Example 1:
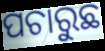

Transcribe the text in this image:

ପଚାରୁଛ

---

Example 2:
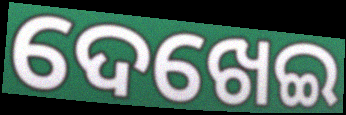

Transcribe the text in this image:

ଦେଖେଇ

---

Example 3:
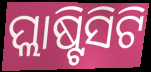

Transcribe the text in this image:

ପ୍ଲାଷ୍ଟିସିଟି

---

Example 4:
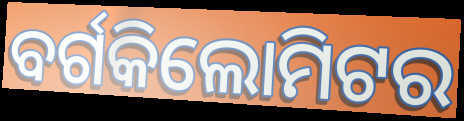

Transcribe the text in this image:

ବର୍ଗକିଲୋମିଟର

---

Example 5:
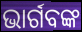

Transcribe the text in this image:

ଭାର୍ଗବଙ୍କ